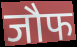
जौफ